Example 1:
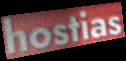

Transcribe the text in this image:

hostias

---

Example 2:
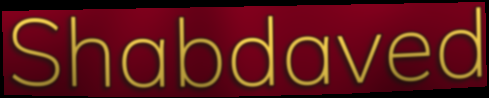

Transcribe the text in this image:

Shabdaved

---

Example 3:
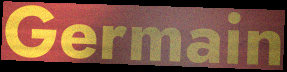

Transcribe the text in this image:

Germain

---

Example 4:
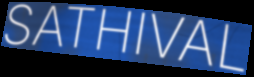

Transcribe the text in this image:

SATHIVAL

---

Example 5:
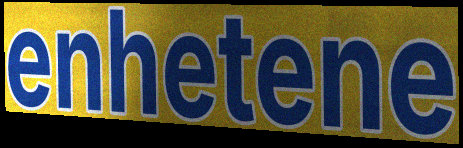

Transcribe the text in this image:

enhetene